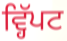
ਵ੍ਹਿੱਪਟ